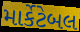
માર્કેટેબલ